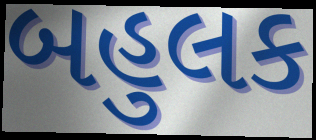
બહુલક